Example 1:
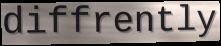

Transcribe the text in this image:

diffrently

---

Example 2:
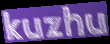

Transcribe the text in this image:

kuzhu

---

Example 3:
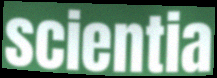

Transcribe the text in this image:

scientia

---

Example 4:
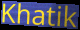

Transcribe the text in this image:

Khatik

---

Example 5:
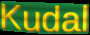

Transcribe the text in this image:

Kudal